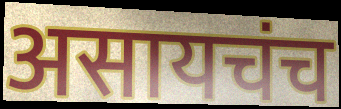
असायचंच